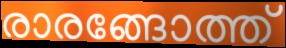
രാരങ്ങോത്ത്